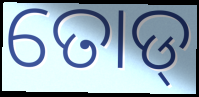
ତୋଡ୍